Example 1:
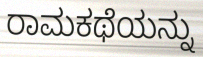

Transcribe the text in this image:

ರಾಮಕಥೆಯನ್ನು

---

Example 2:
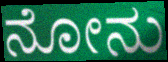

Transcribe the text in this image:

ನೋನು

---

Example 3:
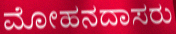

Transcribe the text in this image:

ಮೋಹನದಾಸರು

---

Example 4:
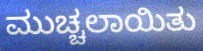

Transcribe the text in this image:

ಮುಚ್ಚಲಾಯಿತು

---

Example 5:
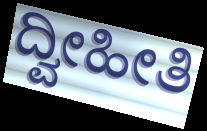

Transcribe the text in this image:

ದ್ವೀಹೀತಿ